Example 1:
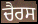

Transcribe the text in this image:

ਚੈਰਸ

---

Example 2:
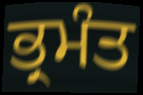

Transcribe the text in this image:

ਭ੍ਰਮੰਤ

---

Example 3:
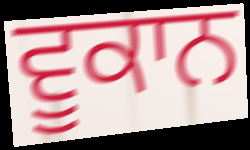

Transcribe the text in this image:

ਵੂਕਾਨ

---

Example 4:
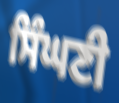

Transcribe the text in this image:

ਸਿੰਘਣੀ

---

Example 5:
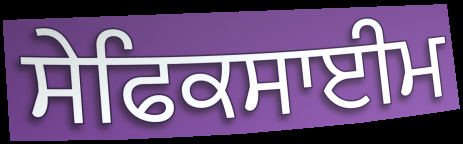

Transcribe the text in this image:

ਸੇਫਿਕਸਾਈਮ